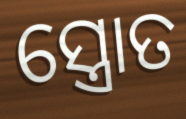
ସ୍ତ୍ରୋତ